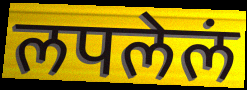
लपलेलं